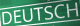
DEUTSCH